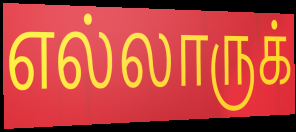
எல்லாருக்